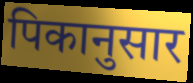
पिकानुसार